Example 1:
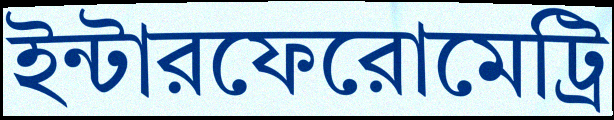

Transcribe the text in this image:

ইন্টারফেরোমেট্রি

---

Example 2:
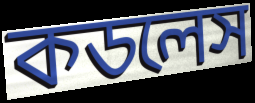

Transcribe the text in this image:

কডলেস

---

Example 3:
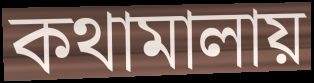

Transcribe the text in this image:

কথামালায়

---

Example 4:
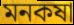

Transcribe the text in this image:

মনকষা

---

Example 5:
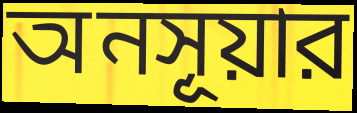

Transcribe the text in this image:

অনসূয়ার